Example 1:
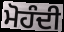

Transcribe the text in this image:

ਮੋਹੰਦੀ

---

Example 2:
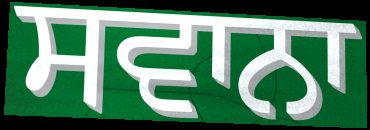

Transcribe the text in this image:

ਸਵਾਨਾ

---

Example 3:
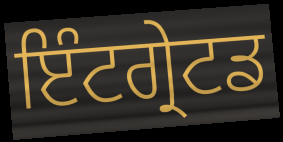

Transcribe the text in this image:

ਇੰਟਗ੍ਰੇਟਡ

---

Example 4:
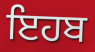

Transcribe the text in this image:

ਇਹਬ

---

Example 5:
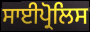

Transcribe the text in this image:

ਸਾਈਪ੍ਰੋਲਿਸ